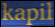
kapil